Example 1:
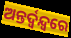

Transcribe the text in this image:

ଅନ୍ତର୍ଦ୍ୱନ୍ଦ୍ୱରେ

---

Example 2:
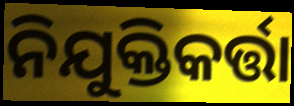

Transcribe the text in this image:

ନିଯୁକ୍ତିକର୍ତ୍ତା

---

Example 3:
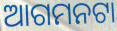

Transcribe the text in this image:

ଆଗମନଟା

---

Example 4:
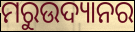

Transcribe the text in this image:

ମରୁଉଦ୍ୟାନର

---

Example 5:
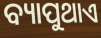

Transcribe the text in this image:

ବ୍ୟାପୁଥାଏ